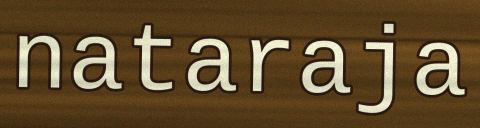
nataraja